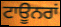
ਟਾਊਨਰਾਂ